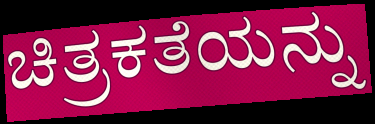
ಚಿತ್ರಕತೆಯನ್ನು